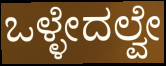
ಒಳ್ಳೇದಲ್ವೇ